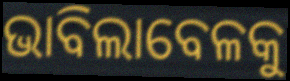
ଭାବିଲାବେଳକୁ